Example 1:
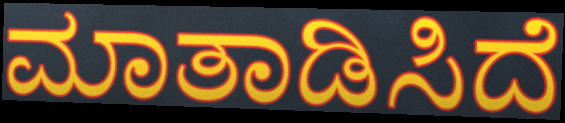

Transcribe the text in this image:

ಮಾತಾಡಿಸಿದೆ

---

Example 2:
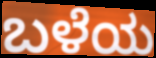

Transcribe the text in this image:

ಬಳೆಯ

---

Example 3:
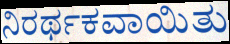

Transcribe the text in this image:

ನಿರರ್ಥಕವಾಯಿತು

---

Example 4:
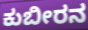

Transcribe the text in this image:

ಕುಬೀರನ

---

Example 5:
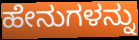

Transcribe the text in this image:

ಹೇನುಗಳನ್ನು